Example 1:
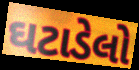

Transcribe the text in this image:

ઘટાડેલો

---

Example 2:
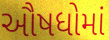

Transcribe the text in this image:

ઔષધોમાં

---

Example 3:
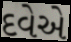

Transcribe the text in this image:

દવેએ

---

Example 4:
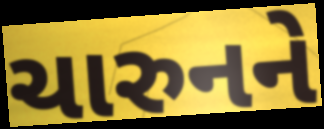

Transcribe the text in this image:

ચારુનને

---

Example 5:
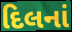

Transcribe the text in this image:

દિલનાં